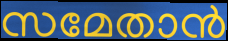
സമേതാൻ